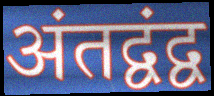
अंतद्वंद्व